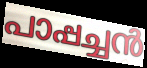
പാപ്പച്ചൻ